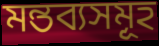
মন্তব্যসমূহ